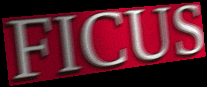
FICUS